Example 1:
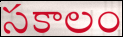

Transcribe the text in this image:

సకాలం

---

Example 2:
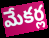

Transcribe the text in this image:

మేకర్ల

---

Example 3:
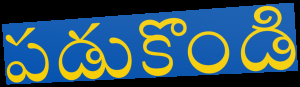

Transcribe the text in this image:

పడుకొండి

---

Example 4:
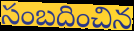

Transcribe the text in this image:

సంబదించిన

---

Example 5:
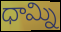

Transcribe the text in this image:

ధామ్ని